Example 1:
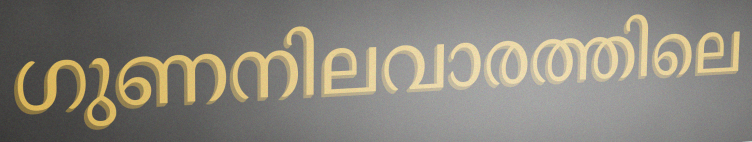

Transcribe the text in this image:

ഗുണനിലവാരത്തിലെ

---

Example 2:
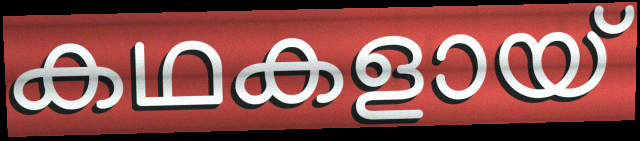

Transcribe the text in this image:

കഥകളായ്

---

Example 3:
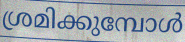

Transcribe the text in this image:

ശ്രമിക്കുമ്പോൾ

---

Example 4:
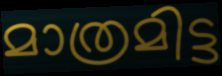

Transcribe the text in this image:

മാത്രമിട്ട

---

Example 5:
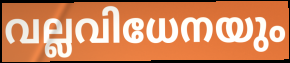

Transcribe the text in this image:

വല്ലവിധേനയും